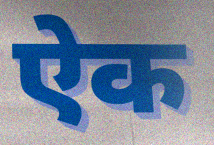
ऐक